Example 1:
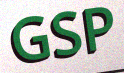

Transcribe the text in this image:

GSP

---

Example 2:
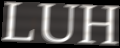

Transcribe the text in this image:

LUH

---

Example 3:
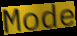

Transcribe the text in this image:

Mode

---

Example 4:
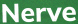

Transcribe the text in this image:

Nerve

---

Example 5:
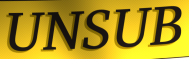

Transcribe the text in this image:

UNSUB